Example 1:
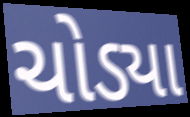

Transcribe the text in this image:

ચોડ્યા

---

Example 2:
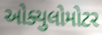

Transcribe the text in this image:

ઓક્યુલોમોટર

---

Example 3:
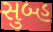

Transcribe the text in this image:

સુબ્હ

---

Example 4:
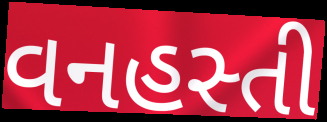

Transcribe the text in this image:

વનહસ્તી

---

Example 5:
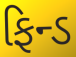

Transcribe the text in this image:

ફિન્ડ